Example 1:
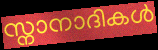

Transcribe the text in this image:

സ്നാനാദികൾ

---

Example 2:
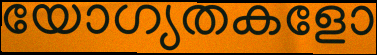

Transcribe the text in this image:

യോഗ്യതകളോ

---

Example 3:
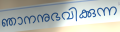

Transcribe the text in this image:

ഞാനനുഭവിക്കുന്ന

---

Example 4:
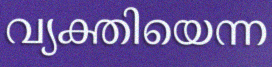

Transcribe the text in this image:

വ്യക്തിയെന്ന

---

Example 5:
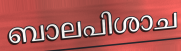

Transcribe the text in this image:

ബാലപിശാച